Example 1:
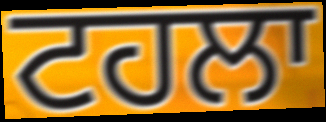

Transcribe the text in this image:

ਟਹਲਾ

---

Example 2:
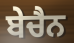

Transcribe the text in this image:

ਬੇਚੈਨ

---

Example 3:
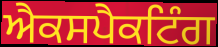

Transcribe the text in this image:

ਐਕਸਪੈਕਟਿੰਗ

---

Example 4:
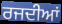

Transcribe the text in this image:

ਰਜਦੀਆਂ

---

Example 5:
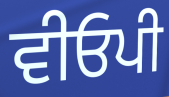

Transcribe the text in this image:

ਵੀਓਪੀ